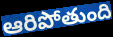
ఆరిపోతుంది